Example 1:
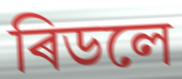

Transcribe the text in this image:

ৰিডলে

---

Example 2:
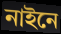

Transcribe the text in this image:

নাইনে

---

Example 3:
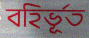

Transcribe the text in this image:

বহিৰ্ভূত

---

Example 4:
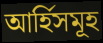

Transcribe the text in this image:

আৰ্হিসমূহ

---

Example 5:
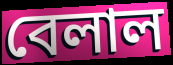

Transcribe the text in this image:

বেলাল